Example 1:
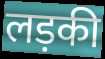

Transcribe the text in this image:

लड़की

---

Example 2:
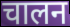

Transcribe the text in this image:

चालन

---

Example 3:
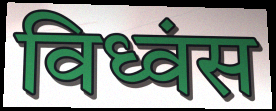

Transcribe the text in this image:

विध्वंस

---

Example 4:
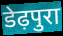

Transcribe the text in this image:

डेढ़पुरा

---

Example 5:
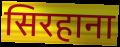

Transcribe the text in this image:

सिरहाना